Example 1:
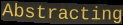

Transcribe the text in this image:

Abstracting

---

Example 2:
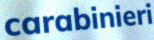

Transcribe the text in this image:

carabinieri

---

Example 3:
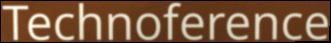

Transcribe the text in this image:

Technoference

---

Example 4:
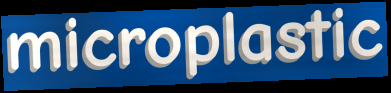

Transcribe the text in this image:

microplastic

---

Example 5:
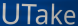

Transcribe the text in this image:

UTake